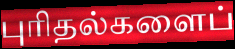
புரிதல்களைப்